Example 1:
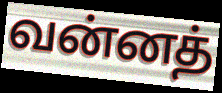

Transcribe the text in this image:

வன்னத்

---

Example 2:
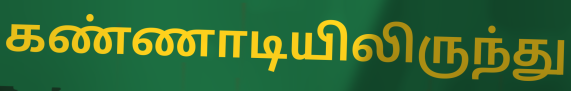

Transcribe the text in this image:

கண்ணாடியிலிருந்து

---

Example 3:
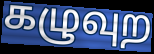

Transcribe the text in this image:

கழுவுற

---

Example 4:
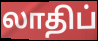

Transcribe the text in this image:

லாதிப்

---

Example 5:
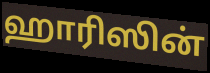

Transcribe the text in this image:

ஹாரிஸின்